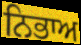
ਨਿਭਾਅ